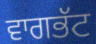
ਵਾਗਭੱਟ